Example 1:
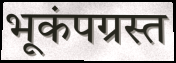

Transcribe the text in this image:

भूकंपग्रस्त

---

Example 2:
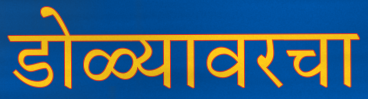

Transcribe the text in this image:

डोळ्यावरचा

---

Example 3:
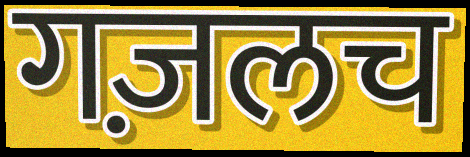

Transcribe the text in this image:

गज़लच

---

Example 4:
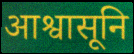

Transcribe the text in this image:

आश्वासूनि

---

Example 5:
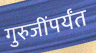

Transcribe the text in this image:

गुरुजींपर्यंत